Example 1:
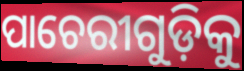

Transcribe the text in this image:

ପାଚେରୀଗୁଡ଼ିକୁ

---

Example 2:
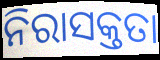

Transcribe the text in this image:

ନିରାସକ୍ତତା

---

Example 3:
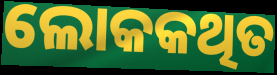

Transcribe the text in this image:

ଲୋକକଥିତ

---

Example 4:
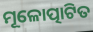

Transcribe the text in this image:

ମୂଳୋତ୍ପାଟିତ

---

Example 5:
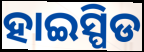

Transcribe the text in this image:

ହାଇସ୍ପିଡ